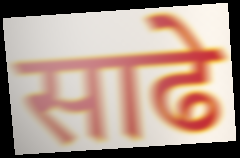
साढे